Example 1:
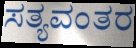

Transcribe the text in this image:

ಸತ್ಯವಂತರ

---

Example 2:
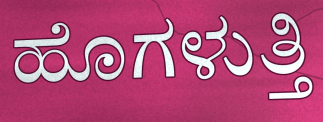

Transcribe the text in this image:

ಹೊಗಳುತ್ತಿ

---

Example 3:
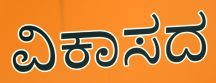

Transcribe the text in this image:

ವಿಕಾಸದ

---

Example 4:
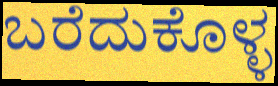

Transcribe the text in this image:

ಬರೆದುಕೊಳ್ಳ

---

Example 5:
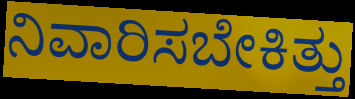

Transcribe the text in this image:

ನಿವಾರಿಸಬೇಕಿತ್ತು